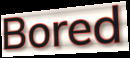
Bored